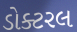
ડોક્ટરલ